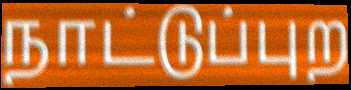
நாட்டுப்புற